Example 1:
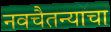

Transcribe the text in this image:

नवचैतन्याचा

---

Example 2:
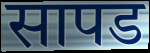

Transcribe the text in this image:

सापड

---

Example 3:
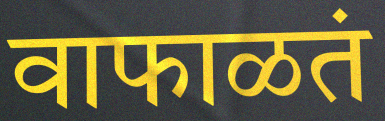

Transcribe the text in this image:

वाफाळतं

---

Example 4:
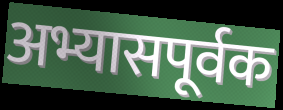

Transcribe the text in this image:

अभ्यासपूर्वक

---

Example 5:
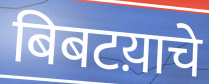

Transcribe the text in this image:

बिबटय़ाचे